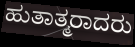
ಹುತಾತ್ಮರಾದರು